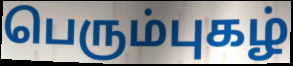
பெரும்புகழ்